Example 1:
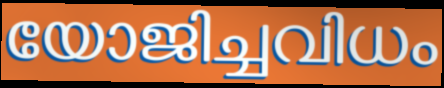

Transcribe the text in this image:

യോജിച്ചവിധം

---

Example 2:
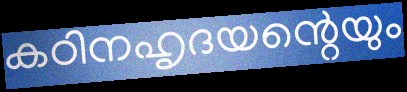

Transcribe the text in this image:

കഠിനഹൃദയന്റെയും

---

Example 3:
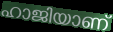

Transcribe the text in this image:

ഹാജിയാണ്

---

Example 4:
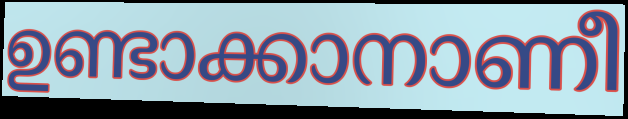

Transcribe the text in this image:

ഉണ്ടാക്കാനാണീ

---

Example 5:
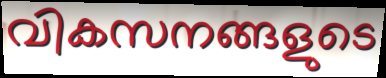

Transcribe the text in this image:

വികസനങ്ങളുടെ